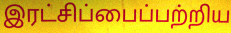
இரட்சிப்பைப்பற்றிய